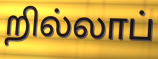
றில்லாப்